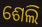
ଶେଲି